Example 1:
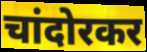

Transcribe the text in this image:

चांदोरकर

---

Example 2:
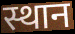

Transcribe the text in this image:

स्थान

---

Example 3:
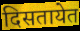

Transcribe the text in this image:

दिसतायेत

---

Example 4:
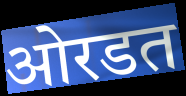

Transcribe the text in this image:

ओरडत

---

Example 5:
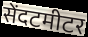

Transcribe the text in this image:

सेंदटमीटर